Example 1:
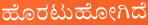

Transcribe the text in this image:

ಹೊರಟುಹೋಗಿದೆ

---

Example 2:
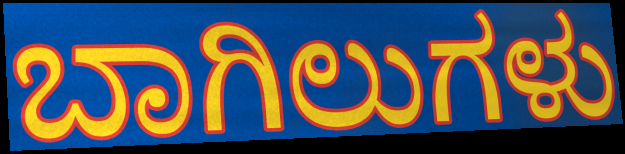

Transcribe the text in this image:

ಬಾಗಿಲುಗಳು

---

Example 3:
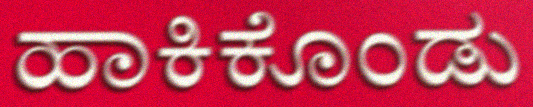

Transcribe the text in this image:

ಹಾಕಿಕೊಂಡು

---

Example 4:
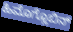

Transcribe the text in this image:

ಹಿಮೊಗ್ಲೊಬಿನ್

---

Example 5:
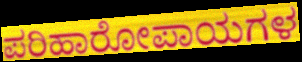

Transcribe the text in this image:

ಪರಿಹಾರೋಪಾಯಗಳ